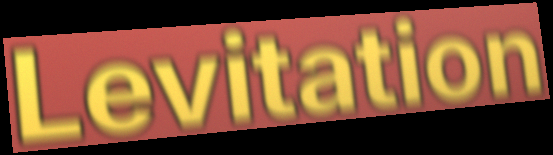
Levitation